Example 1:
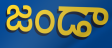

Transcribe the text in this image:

జండా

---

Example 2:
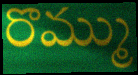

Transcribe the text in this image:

రొమ్ము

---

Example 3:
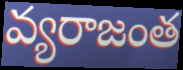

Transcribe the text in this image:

వ్యరాజంత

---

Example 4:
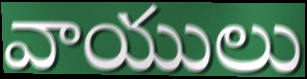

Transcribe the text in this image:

వాయులు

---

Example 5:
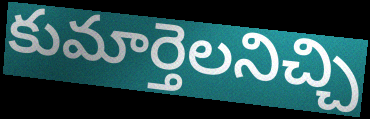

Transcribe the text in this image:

కుమార్తెలనిచ్చి